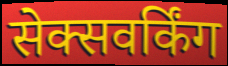
सेक्सवर्किंग